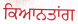
ਕਿਆਨਤਾਂਗ